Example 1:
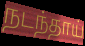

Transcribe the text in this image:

நடந்தாய்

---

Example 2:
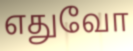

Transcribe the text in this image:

எதுவோ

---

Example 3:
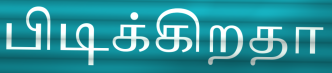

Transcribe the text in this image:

பிடிக்கிறதா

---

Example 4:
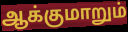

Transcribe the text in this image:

ஆக்குமாறும்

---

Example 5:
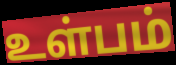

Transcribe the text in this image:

உள்பம்